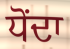
ਧੋਂਦਾ